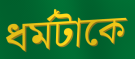
ধর্মটাকে